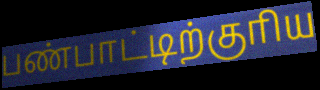
பண்பாட்டிற்குரிய